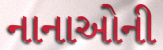
નાનાઓની